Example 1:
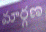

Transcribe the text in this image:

మార్గణ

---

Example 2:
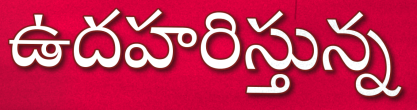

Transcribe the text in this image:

ఉదహరిస్తున్న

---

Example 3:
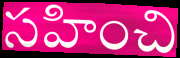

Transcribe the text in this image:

సహించి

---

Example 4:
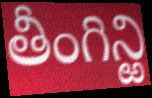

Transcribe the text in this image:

తీంగిన్ఱి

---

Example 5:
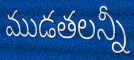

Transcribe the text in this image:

ముడతలన్నీ